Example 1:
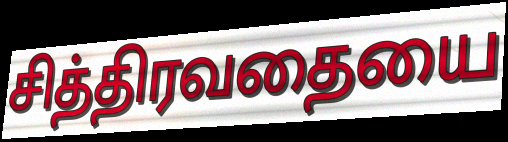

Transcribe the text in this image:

சித்திரவதையை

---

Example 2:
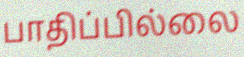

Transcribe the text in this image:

பாதிப்பில்லை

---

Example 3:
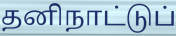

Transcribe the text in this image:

தனிநாட்டுப்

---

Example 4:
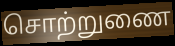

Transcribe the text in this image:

சொற்றுணை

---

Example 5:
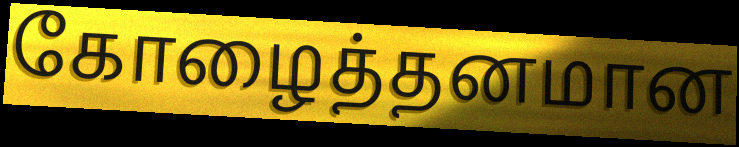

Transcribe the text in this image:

கோழைத்தனமான